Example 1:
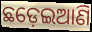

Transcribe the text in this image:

ଛଡ଼େଇଆଣି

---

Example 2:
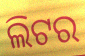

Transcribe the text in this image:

ଲିଟର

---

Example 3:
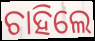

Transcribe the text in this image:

ଚାହିଲେ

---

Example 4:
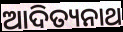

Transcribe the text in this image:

ଆଦିତ୍ୟନାଥ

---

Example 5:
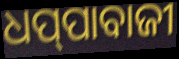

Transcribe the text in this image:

ଧପ୍‌ପାବାଜୀ